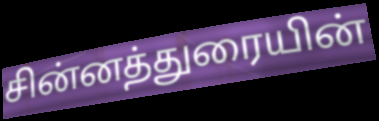
சின்னத்துரையின்